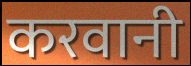
करवानी